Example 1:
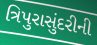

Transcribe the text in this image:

ત્રિપુરાસુંદરીની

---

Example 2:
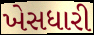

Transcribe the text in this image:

ખેસધારી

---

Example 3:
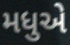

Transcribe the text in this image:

મધુએ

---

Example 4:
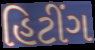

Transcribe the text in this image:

હિટીંગ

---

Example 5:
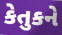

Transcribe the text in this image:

કેતુકને